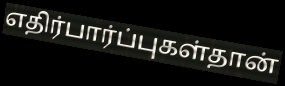
எதிர்பார்ப்புகள்தான்